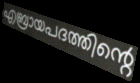
എബ്രായപദത്തിന്റെ